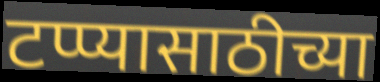
टप्प्यासाठीच्या